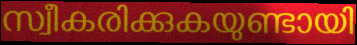
സ്വീകരിക്കുകയുണ്ടായി